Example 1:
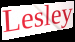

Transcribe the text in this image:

Lesley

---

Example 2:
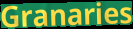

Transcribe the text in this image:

Granaries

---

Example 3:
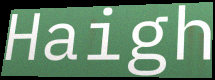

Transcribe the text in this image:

Haigh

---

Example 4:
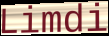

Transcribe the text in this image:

Limdi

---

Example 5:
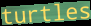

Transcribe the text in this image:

turtles